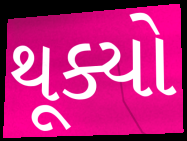
થૂક્યો